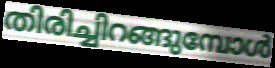
തിരിച്ചിറങ്ങുമ്പോൾ